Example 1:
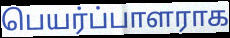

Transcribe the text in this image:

பெயர்ப்பாளராக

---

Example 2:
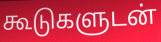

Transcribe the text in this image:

கூடுகளுடன்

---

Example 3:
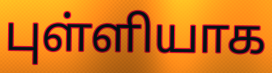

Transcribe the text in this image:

புள்ளியாக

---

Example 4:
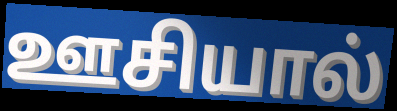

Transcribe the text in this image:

ஊசியால்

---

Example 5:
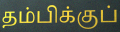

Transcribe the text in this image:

தம்பிக்குப்